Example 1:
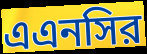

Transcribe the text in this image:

এএনসির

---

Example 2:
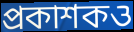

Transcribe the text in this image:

প্রকাশকও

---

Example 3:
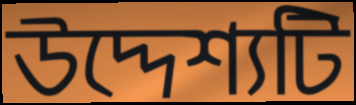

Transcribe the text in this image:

উদ্দেশ্যটি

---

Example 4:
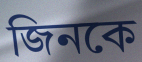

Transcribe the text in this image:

জিনকে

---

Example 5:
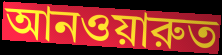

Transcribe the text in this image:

আনওয়ারুত